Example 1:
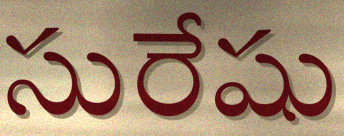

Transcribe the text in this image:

సురేషు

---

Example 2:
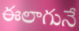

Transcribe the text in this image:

ఈలాగునే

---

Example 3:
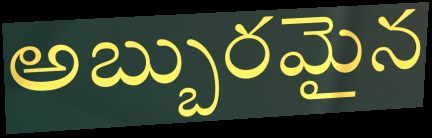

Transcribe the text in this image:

అబ్బురమైన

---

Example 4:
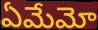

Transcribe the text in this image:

ఏమేమో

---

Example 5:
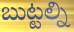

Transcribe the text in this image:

బుట్టల్ని